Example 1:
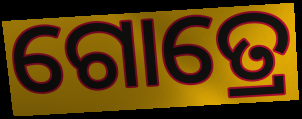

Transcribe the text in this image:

ଗୋତ୍ରେ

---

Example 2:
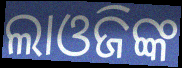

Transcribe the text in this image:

ଲାଓଜିଙ୍କ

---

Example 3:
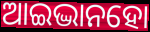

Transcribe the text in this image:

ଆଇଦ୍ଭାନହୋ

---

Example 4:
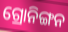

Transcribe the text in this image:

ଗ୍ରୋନିଙ୍ଗନ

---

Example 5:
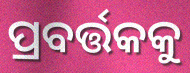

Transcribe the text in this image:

ପ୍ରବର୍ତ୍ତକକୁ